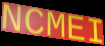
NCMEI